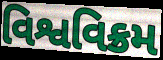
વિશ્વવિક્રમ